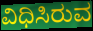
ವಿಧಿಸಿರುವ